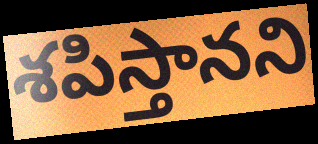
శపిస్తానని